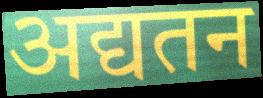
अद्यतन